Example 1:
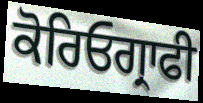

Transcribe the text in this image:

ਕੋਰਿਓਗ੍ਰਾਫੀ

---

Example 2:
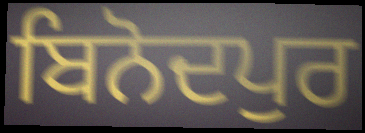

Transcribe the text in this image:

ਬਿਨੋਦਪੁਰ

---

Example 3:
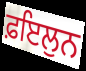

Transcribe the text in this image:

ਫ਼ਇਲੁਨ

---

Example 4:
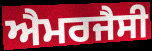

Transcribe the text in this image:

ਐਮਰਜੈਸੀ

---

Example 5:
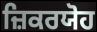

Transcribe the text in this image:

ਜ਼ਿਕਰਯੋਹ